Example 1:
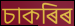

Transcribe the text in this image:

চাকৰিৰ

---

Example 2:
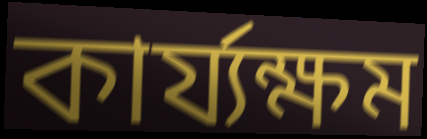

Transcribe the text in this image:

কাৰ্য্যক্ষম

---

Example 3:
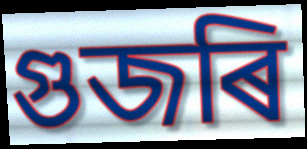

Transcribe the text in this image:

গুজৰি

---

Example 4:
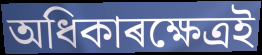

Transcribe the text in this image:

অধিকাৰক্ষেত্ৰই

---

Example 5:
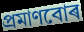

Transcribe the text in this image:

প্ৰমাণবোৰ